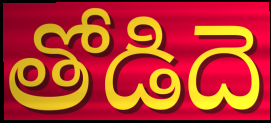
తోడిదె